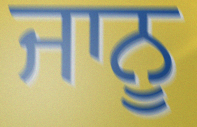
ਜਾਨੂ